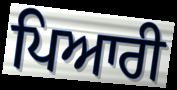
ਪਿਆਰੀ